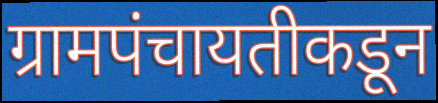
ग्रामपंचायतीकडून